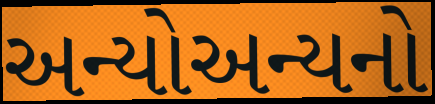
અન્યોઅન્યનો